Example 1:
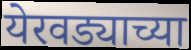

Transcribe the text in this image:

येरवड्याच्या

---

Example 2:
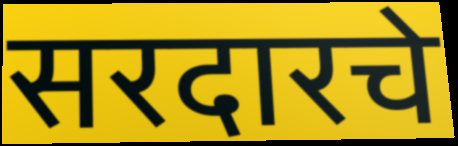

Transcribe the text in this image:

सरदारचे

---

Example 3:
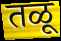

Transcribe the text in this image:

तळू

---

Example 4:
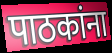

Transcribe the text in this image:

पाठकांना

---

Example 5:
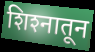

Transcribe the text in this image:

शिश्नातून